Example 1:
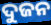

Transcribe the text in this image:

ଦୁଜନ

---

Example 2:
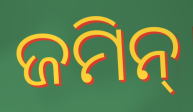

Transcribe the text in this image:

ଜମିନ୍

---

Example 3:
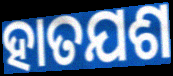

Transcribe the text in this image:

ହାତଯଶ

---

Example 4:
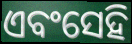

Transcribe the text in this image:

ଏବଂସେହି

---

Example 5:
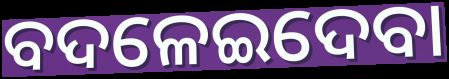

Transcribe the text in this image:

ବଦଳେଇଦେବା